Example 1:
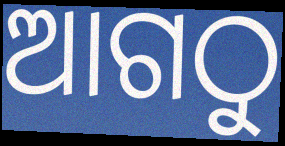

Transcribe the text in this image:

ଆଗଠୁ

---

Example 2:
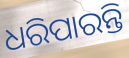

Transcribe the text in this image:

ଧରିପାରନ୍ତି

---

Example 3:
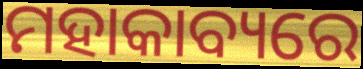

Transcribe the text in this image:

ମହାକାବ୍ୟରେ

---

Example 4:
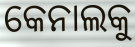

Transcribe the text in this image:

କେନାଲକୁ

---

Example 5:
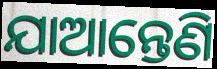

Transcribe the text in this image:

ଯାଆନ୍ତେଣି